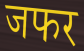
जफर